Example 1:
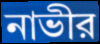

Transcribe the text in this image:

নাভীর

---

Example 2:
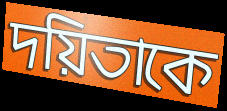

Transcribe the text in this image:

দয়িতাকে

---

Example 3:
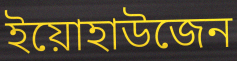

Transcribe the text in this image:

ইয়োহাউজেন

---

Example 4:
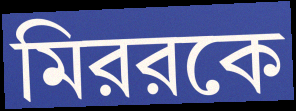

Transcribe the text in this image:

মিররকে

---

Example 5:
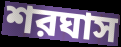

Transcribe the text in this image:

শরঘাস